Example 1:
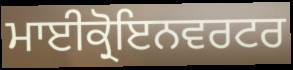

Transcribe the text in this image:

ਮਾਈਕ੍ਰੋਇਨਵਰਟਰ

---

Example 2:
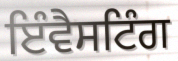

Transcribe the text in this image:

ਇੰਵੈਸਟਿੰਗ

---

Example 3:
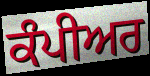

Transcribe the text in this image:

ਕੰਪੀਅਰ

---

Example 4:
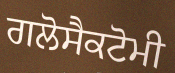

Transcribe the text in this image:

ਗਲੋਸੈਕਟੋਮੀ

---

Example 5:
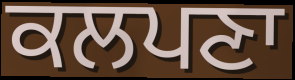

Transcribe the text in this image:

ਕਲਪਣਾ